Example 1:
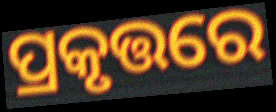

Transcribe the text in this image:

ପ୍ରକୃତ୍ତରେ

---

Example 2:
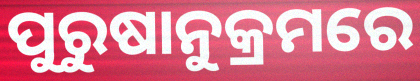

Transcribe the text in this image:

ପୁରୁଷାନୁକ୍ରମରେ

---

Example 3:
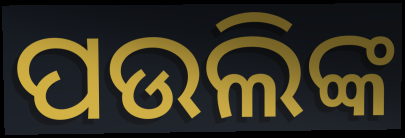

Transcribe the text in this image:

ପଉଲିଙ୍କ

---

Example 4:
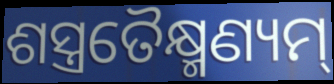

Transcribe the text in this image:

ଶସ୍ତ୍ରତୈକ୍ଷ୍ମଣ୍ୟମ୍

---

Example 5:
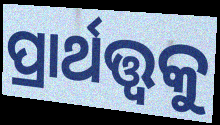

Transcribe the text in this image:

ପ୍ରାର୍ଥତ୍ତ୍ୱକୁ